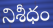
నిశీధం